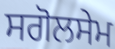
ਸਗੋਲਸੇਮ